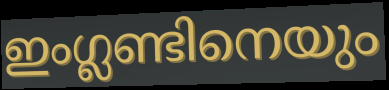
ഇംഗ്ലണ്ടിനെയും